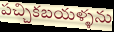
పచ్చికబయళ్ళను